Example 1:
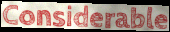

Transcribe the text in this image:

Considerable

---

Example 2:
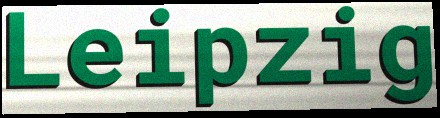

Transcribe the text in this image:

Leipzig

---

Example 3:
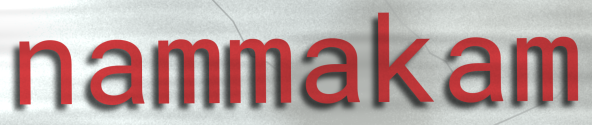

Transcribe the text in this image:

nammakam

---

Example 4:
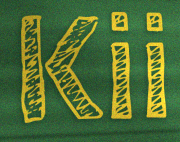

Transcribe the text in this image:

Kii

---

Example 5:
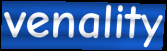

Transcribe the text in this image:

venality